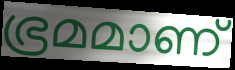
ഭ്രമമാണ്